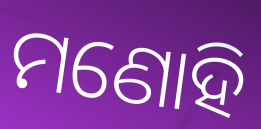
ମଣୋହି